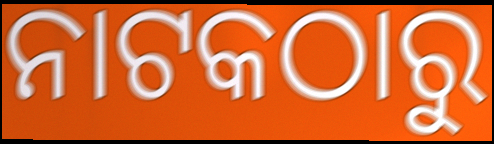
ନାଟକଠାରୁ